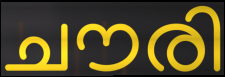
ചൗരി